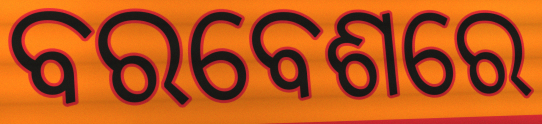
ବରବେଶରେ